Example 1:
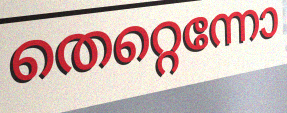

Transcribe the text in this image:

തെറ്റെന്നോ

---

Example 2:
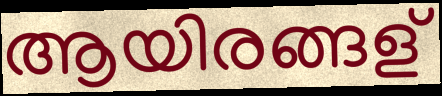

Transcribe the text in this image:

ആയിരങ്ങള്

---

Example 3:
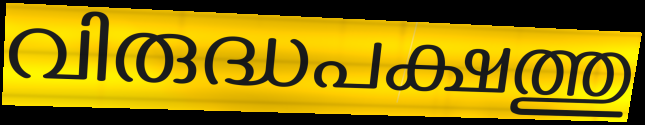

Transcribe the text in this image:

വിരുദ്ധപക്ഷത്തു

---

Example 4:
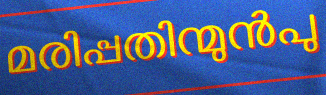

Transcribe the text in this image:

മരിപ്പതിന്മുൻപു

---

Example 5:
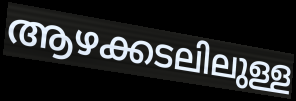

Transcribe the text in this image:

ആഴക്കടലിലുള്ള